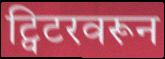
ट्विटरवरून